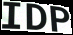
IDP